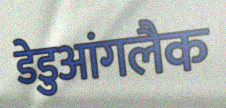
डेडुआंगलैक